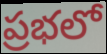
ప్రభలో